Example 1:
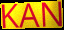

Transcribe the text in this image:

KAN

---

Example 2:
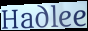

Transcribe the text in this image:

Hadlee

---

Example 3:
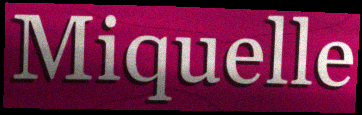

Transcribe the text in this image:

Miquelle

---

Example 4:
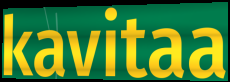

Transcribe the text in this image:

kavitaa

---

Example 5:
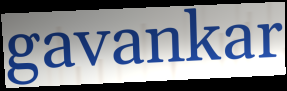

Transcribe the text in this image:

gavankar